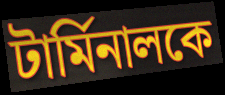
টার্মিনালকে